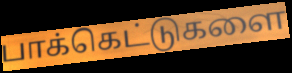
பாக்கெட்டுகளை